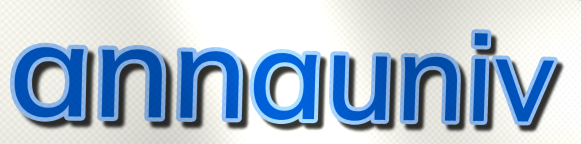
annauniv